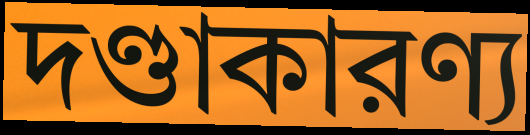
দণ্ডাকারণ্য